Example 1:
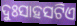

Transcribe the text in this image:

ଦୁଃସାହସଟିଏ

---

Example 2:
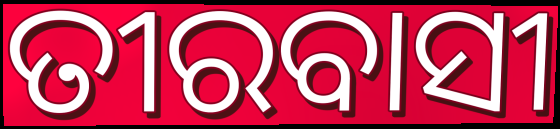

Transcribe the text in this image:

ତୀରବାସୀ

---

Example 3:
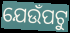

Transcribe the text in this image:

ଯେଉଁପଟୁ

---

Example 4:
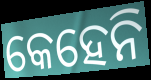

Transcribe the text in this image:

କେହେନି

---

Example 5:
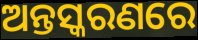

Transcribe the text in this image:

ଅନ୍ତସ୍କରଣରେ